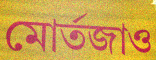
মোর্তজাও